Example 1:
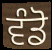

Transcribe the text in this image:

ਵੰਡੋ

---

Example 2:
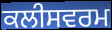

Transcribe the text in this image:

ਕਲੀਸਵਰਮ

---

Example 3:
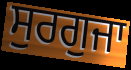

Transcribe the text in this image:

ਸੁਰਗੁਜਾ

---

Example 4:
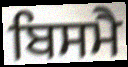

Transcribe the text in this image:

ਬਿਸਮੈ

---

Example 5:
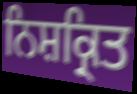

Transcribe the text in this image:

ਨਿਸ਼ਕ੍ਰਿਤ